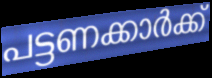
പട്ടണക്കാർക്ക്